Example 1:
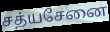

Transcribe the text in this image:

சத்யசேனை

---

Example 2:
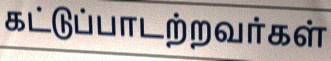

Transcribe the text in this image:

கட்டுப்பாடற்றவர்கள்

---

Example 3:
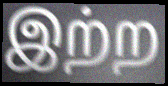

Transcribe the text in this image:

இற்ற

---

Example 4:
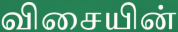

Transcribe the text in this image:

விசையின்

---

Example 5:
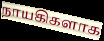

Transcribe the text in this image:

நாயகிகளாக